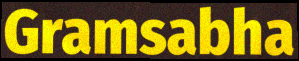
Gramsabha